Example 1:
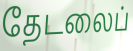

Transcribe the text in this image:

தேடலைப்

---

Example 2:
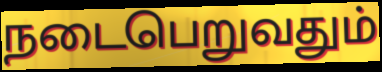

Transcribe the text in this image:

நடைபெறுவதும்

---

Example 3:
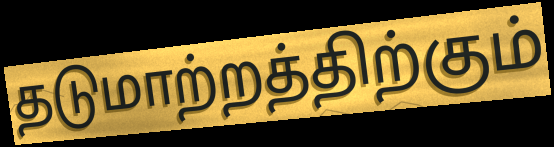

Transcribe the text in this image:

தடுமாற்றத்திற்கும்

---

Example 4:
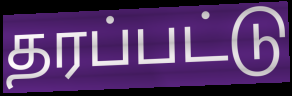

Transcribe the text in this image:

தரப்பட்டு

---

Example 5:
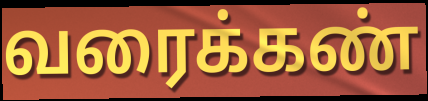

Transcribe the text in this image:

வரைக்கண்